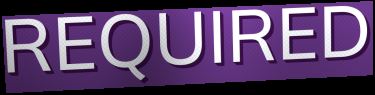
REQUIRED